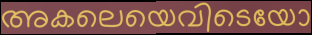
അകലെയെവിടെയോ